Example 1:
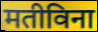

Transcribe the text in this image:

मतीविना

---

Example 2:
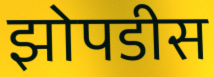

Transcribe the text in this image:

झोपडीस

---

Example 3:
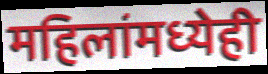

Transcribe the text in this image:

महिलांमध्येही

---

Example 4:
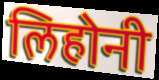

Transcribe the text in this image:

लिहोनी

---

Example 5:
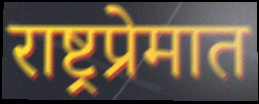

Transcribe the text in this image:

राष्ट्रप्रेमात